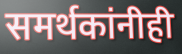
समर्थकांनीही